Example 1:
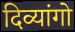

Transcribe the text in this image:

दिव्यांगो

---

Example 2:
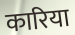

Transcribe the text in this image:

कारिया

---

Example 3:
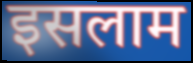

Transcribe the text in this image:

इसलाम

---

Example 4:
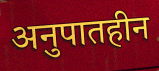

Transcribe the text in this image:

अनुपातहीन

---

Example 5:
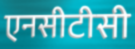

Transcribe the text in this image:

एनसीटीसी